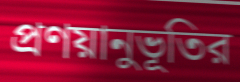
প্রণয়ানুভূতির